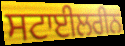
ਸਟਾਈਲਰੀਨ